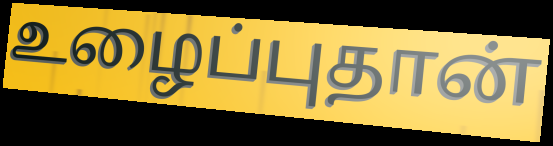
உழைப்புதான்